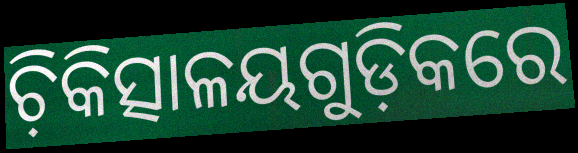
ଚ଼ିକିତ୍ସାଳୟଗୁଡ଼ିକରେ